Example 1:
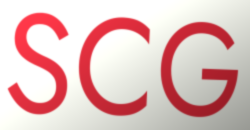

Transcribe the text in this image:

SCG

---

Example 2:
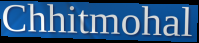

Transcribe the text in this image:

Chhitmohal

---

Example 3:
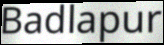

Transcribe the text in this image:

Badlapur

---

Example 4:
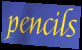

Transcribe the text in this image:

pencils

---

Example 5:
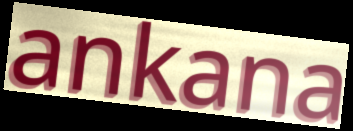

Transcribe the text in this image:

ankana